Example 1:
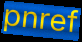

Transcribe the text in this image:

pnref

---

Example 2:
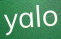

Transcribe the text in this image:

yalo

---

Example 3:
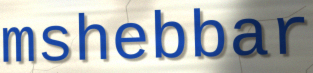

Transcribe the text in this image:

mshebbar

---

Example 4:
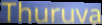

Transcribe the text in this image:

Thuruva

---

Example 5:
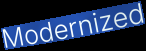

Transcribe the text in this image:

Modernized